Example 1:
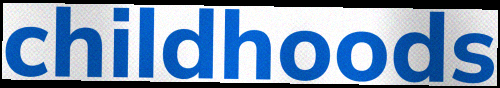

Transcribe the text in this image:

childhoods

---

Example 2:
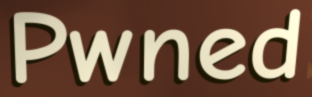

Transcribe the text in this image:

Pwned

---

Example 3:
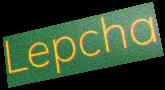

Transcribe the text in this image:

Lepcha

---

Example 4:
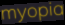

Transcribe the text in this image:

myopia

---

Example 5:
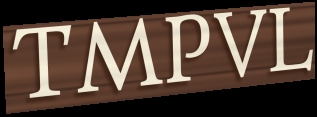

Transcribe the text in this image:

TMPVL